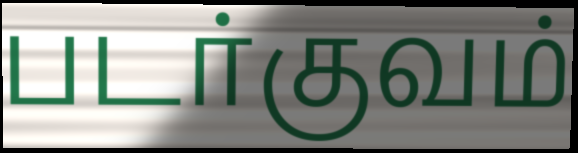
படர்குவம்